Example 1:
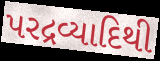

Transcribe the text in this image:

પરદ્રવ્યાદિથી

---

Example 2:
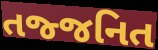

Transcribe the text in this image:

તજ્જનિત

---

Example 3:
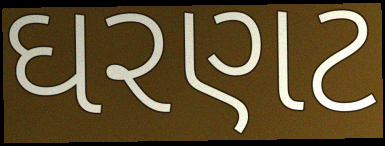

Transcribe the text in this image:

ઘરણટ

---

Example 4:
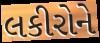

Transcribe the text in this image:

લકીરોને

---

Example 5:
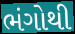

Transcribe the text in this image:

ભંગોથી